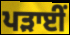
ਪੜਾਈਂ